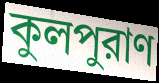
কুলপুরাণ